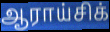
ஆராய்சிக்